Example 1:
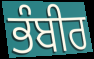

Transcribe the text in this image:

ਭੰਬੀਰ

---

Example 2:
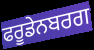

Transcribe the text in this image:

ਫਰੂਡੇਨਬਰਗ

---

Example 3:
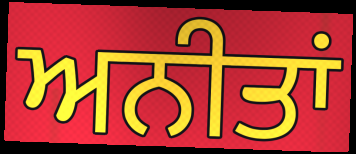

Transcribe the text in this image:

ਅਨੀਤਾਂ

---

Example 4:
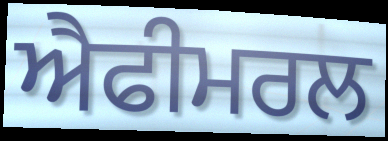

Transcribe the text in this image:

ਐਫੀਮਰਲ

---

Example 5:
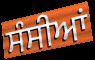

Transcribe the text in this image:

ਸੰਸੀਆਂ